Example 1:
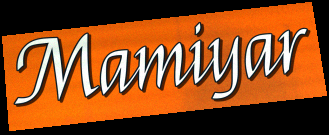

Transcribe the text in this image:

Mamiyar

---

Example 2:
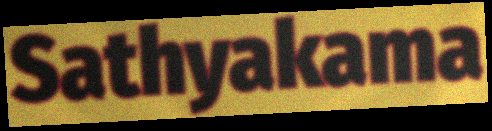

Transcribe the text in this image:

Sathyakama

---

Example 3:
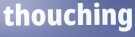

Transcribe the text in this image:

thouching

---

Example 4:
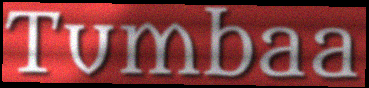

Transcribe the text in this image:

Tumbaa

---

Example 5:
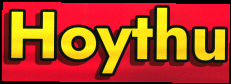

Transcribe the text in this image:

Hoythu